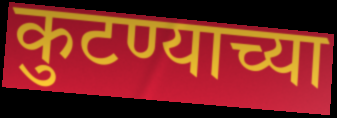
कुटण्याच्या